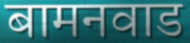
बामनवाड